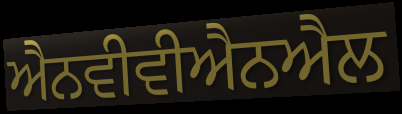
ਐਨਵੀਵੀਐਨਐਲ